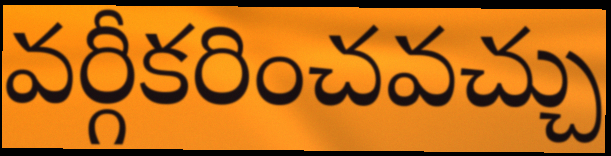
వర్గీకరించవచ్చు